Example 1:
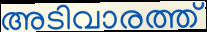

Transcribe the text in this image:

അടിവാരത്ത്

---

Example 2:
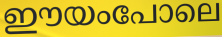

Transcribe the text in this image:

ഈയംപോലെ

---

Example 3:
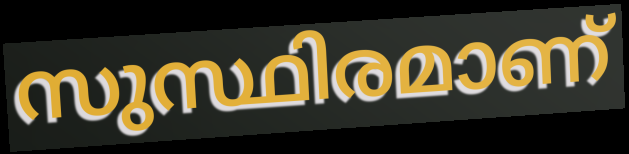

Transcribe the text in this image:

സുസ്ഥിരമാണ്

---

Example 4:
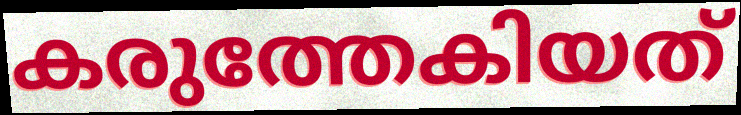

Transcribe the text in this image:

കരുത്തേകിയത്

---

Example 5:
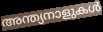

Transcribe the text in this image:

അന്ത്യനാളുകൾ